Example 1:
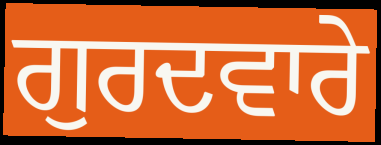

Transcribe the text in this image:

ਗੁਰਦਵਾਰੇ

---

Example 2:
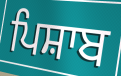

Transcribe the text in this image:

ਪਿਸ਼ਾਬ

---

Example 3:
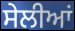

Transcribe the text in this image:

ਸੇਲੀਆਂ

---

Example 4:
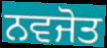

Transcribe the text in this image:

ਨਵਜੋਤ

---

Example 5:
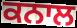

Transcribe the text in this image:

ਕਨਾਲ